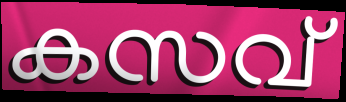
കസവ്